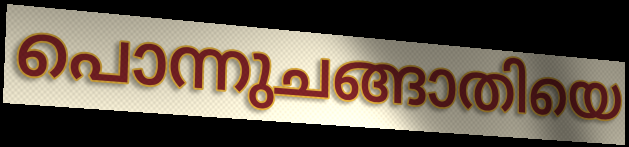
പൊന്നുചങ്ങാതിയെ